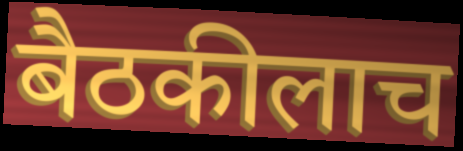
बैठकीलाच